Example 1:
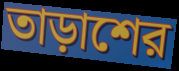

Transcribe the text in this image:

তাড়াশের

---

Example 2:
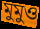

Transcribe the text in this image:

মুমুও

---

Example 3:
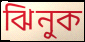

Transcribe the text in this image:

ঝিনুক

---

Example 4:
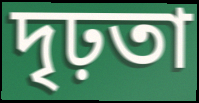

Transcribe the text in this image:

দৃঢ়তা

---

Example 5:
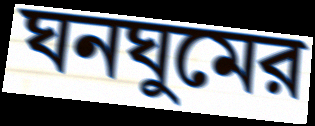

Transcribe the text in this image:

ঘনঘুমের